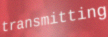
transmitting